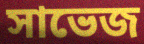
সাভেজ